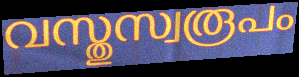
വസ്തുസ്വരൂപം